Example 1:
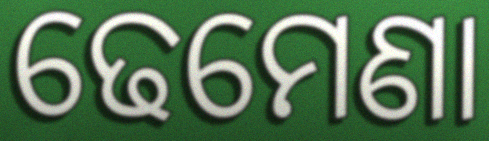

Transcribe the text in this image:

ଢେମେଣା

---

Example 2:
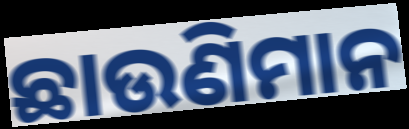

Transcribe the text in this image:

ଛାଉଣିମାନ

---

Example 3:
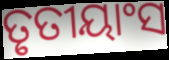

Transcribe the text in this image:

ତୃତୀୟାଂସ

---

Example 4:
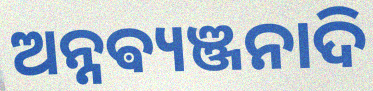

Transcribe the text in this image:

ଅନ୍ନଵ୍ୟଞ୍ଜନାଦି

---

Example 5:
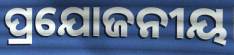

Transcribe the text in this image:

ପ୍ରଯୋଜନୀୟ